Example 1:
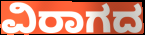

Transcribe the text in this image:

ವಿರಾಗದ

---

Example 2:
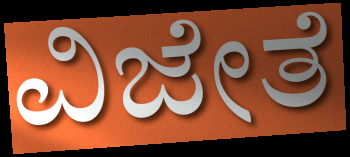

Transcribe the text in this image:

ವಿಜೇತೆ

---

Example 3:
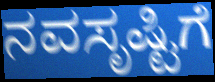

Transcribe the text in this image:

ನವಸೃಷ್ಟಿಗೆ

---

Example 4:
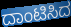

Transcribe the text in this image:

ದಾಂಟಿಸಿದ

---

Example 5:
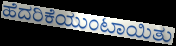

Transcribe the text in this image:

ಹೆದರಿಕೆಯುಂಟಾಯಿತು